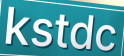
kstdc